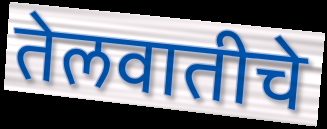
तेलवातीचे